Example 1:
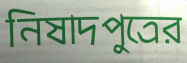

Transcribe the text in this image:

নিষাদপুত্রের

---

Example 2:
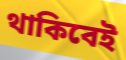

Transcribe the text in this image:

থাকিবেই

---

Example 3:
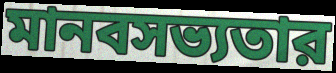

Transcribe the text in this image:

মানবসভ্যতার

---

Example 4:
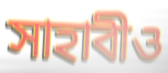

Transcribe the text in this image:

সাহাবীও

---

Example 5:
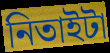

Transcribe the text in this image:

নিতাইটা